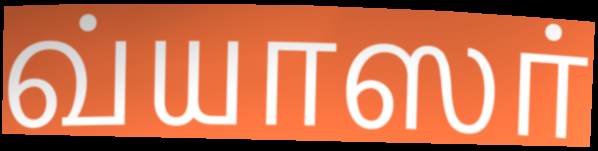
வ்யாஸர்